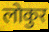
लोकुर